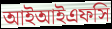
আইআইএফসি